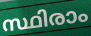
സ്ഥിരാം